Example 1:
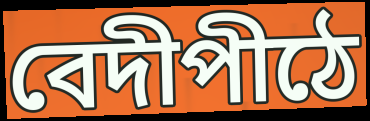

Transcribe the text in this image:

বেদীপীঠে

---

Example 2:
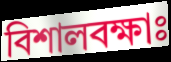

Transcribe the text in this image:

বিশালবক্ষাঃ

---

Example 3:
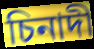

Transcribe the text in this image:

চিনাদী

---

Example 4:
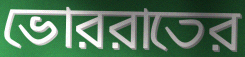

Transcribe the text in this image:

ভোররাতের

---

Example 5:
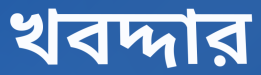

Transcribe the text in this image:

খবদ্দার